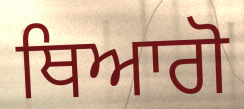
ਥਿਆਗੋ